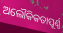
ଅଲୌକିକତାପୂର୍ଣ୍ଣ